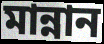
মান্নান